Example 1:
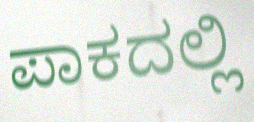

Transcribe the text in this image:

ಪಾಕದಲ್ಲಿ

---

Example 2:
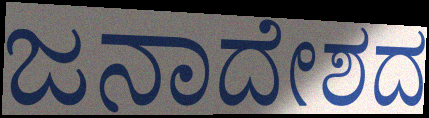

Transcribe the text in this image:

ಜನಾದೇಶದ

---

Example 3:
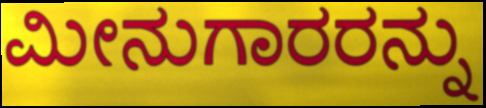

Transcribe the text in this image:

ಮೀನುಗಾರರನ್ನು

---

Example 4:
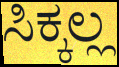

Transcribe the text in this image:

ಸಿಕ್ಕಲ್ಲ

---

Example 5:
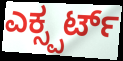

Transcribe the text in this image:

ಎಕ್ಸ್ಪರ್ಟ್